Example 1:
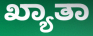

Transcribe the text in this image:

ಖ್ಯಾತಾ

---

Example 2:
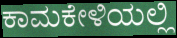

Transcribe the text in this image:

ಕಾಮಕೇಳಿಯಲ್ಲಿ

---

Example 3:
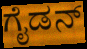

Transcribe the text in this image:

ಗೈಡನ್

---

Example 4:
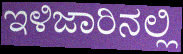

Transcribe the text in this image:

ಇಳಿಜಾರಿನಲ್ಲಿ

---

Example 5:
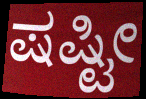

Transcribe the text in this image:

ಷಷ್ಟೀ